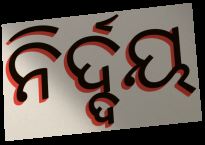
ନିର୍ଦ୍ଦୟ